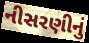
નીસરણીનું